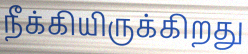
நீக்கியிருக்கிறது